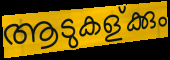
ആടുകള്ക്കും